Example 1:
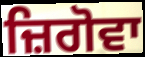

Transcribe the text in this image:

ਜ਼ਿਗੋਵਾ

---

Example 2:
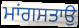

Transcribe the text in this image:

ਮਾਂਗਸਤਾਉ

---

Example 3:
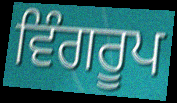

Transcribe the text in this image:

ਵਿੰਗਰੂਪ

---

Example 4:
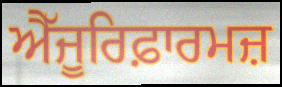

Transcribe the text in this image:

ਐੱਜੂਰਿਫ਼ਾਰਮਜ਼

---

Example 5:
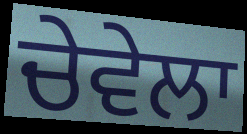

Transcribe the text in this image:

ਚੇਵੇਲਾ